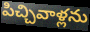
పిచ్చివాళ్లను